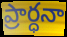
ప్రార్ధనా